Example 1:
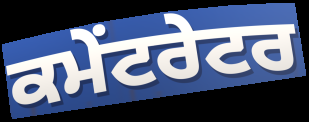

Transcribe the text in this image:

ਕਮੇਂਟਰੇਟਰ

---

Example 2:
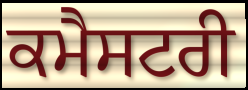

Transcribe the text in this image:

ਕਮੈਸਟਰੀ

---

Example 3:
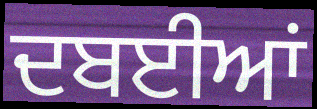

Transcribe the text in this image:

ਦਬਈਆਂ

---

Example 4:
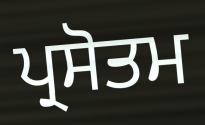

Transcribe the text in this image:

ਪ੍ਰਸੋਤਮ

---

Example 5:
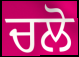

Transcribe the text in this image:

ਚਲੋ